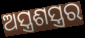
ଅସ୍ତ୍ରଶସ୍ତ୍ରର